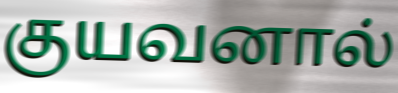
குயவனால்